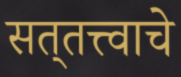
सत्‌तत्त्वाचे